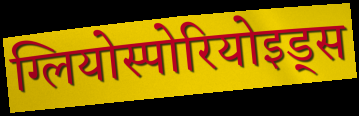
ग्लियोस्पोरियोइड्स